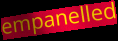
empanelled